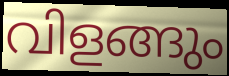
വിളങ്ങും